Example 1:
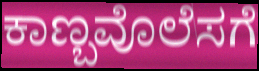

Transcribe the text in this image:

ಕಾಣ್ಬವೊಲೆಸಗೆ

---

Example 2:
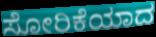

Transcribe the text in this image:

ಸೋರಿಕೆಯಾದ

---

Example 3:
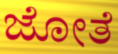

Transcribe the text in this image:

ಜೋತೆ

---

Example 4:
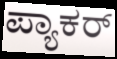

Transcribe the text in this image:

ಪ್ಯಾಕರ್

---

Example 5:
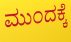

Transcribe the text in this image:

ಮುಂದಕ್ಕೆ